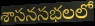
శాసనసభలలో